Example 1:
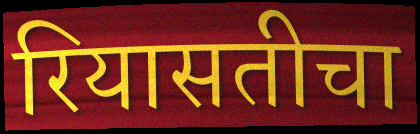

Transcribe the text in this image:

रियासतीचा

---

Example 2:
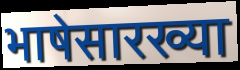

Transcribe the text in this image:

भाषेसारख्या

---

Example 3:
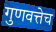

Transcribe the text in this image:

गुणवत्तेच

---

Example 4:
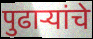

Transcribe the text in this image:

पुढाऱ्यांचे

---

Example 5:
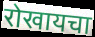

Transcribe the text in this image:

रोखायचा